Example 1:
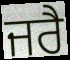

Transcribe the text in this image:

ਜਰੈ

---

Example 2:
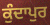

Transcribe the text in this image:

ਕੁੰਦਾਪੁਰ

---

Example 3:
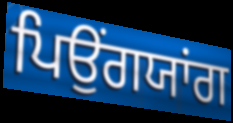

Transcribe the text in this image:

ਪਿਉਂਗਯਾਂਗ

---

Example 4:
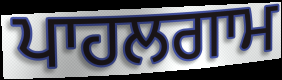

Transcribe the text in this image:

ਪਾਹਲਗਾਮ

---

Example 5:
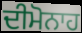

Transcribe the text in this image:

ਦੀਮੋਨਾਹ